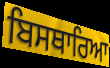
ਬਿਸਥਾਰਿਆ